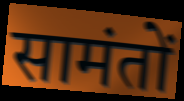
सामंतों